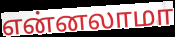
என்னலாமா